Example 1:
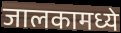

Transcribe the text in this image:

जालकामध्ये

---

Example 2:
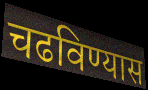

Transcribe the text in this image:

चढविण्यास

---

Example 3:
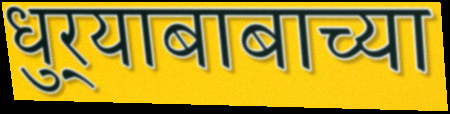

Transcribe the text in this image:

धुर्याबाबाच्या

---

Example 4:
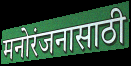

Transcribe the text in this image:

मनोरंजनासाठी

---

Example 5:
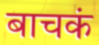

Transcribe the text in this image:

बाचकं